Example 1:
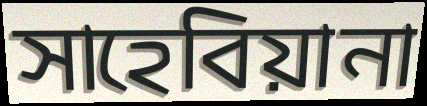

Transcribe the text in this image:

সাহেবিয়ানা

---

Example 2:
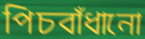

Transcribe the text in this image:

পিচবাঁধানো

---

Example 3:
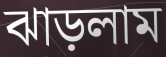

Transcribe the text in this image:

ঝাড়লাম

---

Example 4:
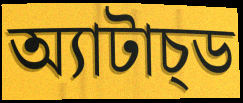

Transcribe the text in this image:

অ্যাটাচ্ড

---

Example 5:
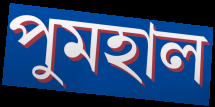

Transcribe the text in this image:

পুমহাল